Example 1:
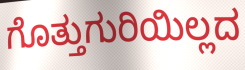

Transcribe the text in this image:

ಗೊತ್ತುಗುರಿಯಿಲ್ಲದ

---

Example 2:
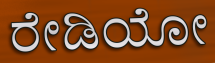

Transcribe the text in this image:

ರೇಡಿಯೋ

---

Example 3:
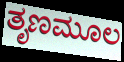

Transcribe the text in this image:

ತೃಣಮೂಲ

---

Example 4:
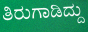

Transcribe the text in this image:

ತಿರುಗಾಡಿದ್ದು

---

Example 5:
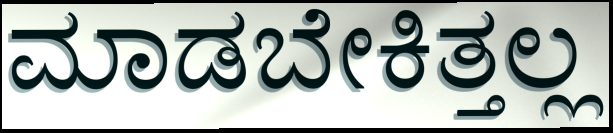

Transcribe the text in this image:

ಮಾಡಬೇಕಿತ್ತಲ್ಲ